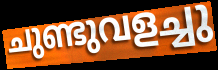
ചുണ്ടുവളച്ചു